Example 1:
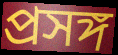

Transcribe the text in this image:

প্ৰসঙ্গ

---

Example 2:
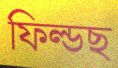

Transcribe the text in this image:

ফিল্ডছ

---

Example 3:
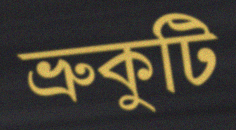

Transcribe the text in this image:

ভ্ৰুকুটি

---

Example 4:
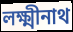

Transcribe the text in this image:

লক্ষ্মীনাথ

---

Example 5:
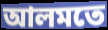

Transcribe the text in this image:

আলমতে